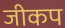
जीकप